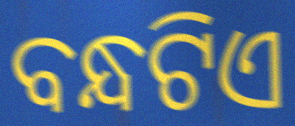
ବନ୍ଧଟିଏ